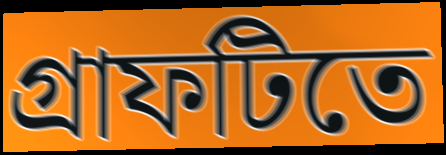
গ্রাফটিতে